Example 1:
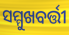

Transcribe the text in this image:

ସମ୍ମୁଖବର୍ତ୍ତୀ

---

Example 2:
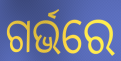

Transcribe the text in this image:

ଗର୍ଭରେ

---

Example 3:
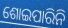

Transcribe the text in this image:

ଶୋଇପାରିନି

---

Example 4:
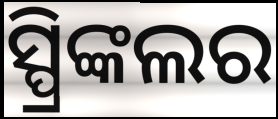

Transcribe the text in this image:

ସ୍ପ୍ରିଙ୍କଲର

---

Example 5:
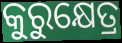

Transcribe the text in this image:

କୁରୁକ୍ଷେତ୍ର